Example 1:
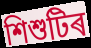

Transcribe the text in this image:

শিশুটিৰ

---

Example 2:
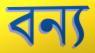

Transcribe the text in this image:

বন্য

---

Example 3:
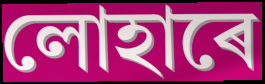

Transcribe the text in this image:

লোহাৰে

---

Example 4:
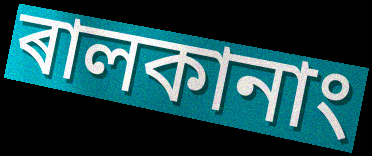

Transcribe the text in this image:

ৰালকানাং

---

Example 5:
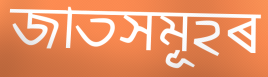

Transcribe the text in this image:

জাতসমূহৰ